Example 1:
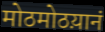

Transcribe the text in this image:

मोठमोठय़ानं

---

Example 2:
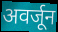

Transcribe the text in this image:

अवर्जून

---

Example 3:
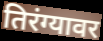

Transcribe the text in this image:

तिरंग्यावर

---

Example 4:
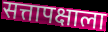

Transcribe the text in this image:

सत्तापक्षाला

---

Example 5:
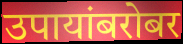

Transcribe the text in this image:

उपायांबरोबर